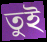
তুই